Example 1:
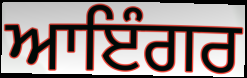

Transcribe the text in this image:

ਆਇੰਗਰ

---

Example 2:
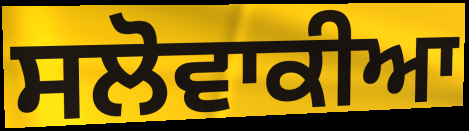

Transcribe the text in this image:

ਸਲੋਵਾਕੀਆ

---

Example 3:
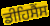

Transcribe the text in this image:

ਡੀਹਿਸੈਂਸ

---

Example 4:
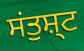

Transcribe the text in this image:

ਸਂਤੁਸ਼੍ਟ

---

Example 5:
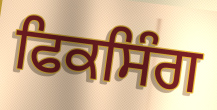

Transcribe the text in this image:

ਫਿਕਸਿੰਗ